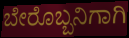
ಬೇರೊಬ್ಬನಿಗಾಗಿ